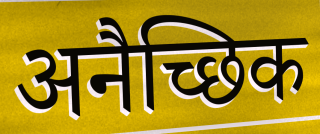
अनैच्छिक